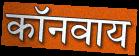
कॉनवाय